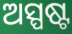
ଅସ୍ପଷ୍ଟ